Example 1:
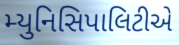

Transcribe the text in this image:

મ્યુનિસિપાલિટીએ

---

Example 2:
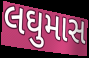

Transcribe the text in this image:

લઘુમાસ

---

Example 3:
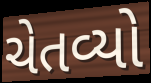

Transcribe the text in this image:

ચેતવ્યો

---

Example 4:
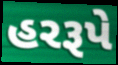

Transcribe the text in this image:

હરરૂપે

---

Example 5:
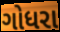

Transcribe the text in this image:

ગોધરા